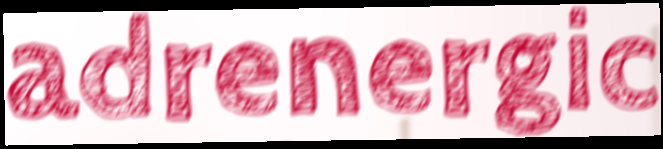
adrenergic